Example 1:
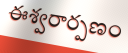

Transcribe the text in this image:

ఈశ్వరార్పణం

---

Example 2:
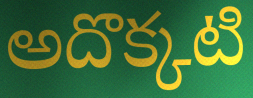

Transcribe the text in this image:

అదొక్కటి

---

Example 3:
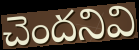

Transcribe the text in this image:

చెందనివి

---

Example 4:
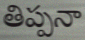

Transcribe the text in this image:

తిప్పనా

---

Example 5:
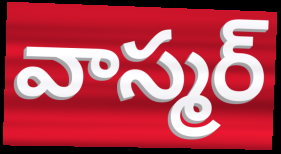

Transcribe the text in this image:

వాస్మర్